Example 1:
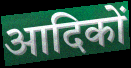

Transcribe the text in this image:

आदिकों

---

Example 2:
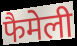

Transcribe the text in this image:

फैमेली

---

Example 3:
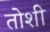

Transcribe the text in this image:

तोशी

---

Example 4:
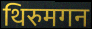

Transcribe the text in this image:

थिरुमगन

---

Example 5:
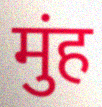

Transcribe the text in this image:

मुंह